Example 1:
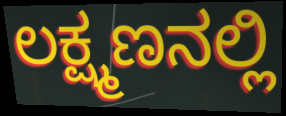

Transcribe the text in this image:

ಲಕ್ಷ್ಮಣನಲ್ಲಿ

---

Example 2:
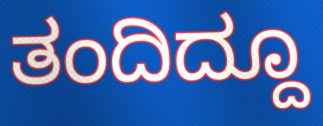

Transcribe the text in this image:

ತಂದಿದ್ದೂ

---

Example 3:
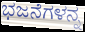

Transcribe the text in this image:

ಭಜನೆಗಳನ್ನ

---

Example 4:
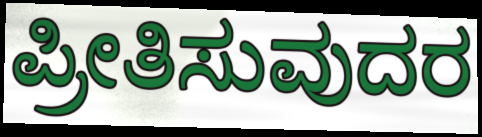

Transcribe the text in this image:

ಪ್ರೀತಿಸುವುದರ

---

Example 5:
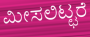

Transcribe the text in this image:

ಮೀಸಲಿಟ್ಟರೆ